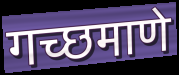
गच्छमाणे